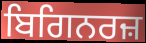
ਬਿਗਿਨਰਜ਼